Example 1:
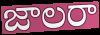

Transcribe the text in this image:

జాలరా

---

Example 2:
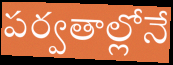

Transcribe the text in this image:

పర్వతాల్లోనే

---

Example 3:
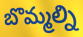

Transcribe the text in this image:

బొమ్మల్ని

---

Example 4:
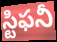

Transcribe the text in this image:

స్టిఫనీ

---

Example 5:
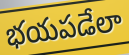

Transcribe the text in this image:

భయపడేలా